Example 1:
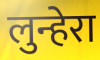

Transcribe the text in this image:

लुन्हेरा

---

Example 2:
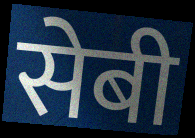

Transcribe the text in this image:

सेबी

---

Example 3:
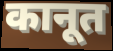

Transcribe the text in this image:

कानूत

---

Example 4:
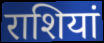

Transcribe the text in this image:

राशियां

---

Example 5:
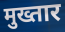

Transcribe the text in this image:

मुख्तार